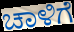
ಚಾಳಿಗೆ